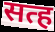
सत्ह